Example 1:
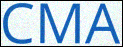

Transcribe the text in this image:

CMA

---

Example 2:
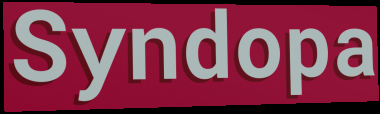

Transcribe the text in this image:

Syndopa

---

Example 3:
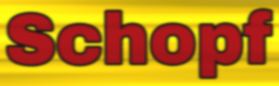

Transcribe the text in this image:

Schopf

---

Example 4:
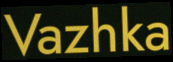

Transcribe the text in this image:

Vazhka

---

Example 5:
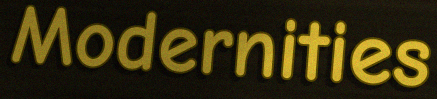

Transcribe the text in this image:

Modernities